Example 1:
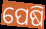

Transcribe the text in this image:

ପେଷି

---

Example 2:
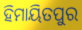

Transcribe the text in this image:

ହିମାୟିତପୁର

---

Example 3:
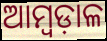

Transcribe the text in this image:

ଆମ୍ବଡ଼ାଳ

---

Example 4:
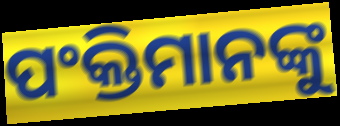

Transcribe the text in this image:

ପଂକ୍ତିମାନଙ୍କୁ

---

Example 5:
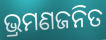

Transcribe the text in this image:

ଭ୍ରମଣଜନିତ